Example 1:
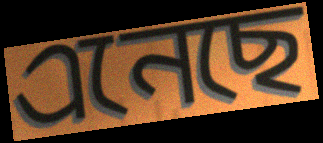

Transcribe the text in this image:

এনেছে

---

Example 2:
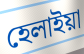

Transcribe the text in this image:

হেলাইয়া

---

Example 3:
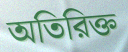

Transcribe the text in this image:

অতিরিক্ত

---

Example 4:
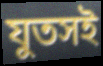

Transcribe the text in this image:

যুতসই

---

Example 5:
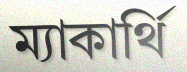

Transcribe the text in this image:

ম্যাকার্থি